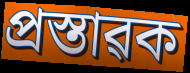
প্ৰস্তাৱক